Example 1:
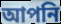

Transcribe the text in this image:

আপনি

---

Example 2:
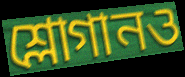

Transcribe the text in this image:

শ্লোগানও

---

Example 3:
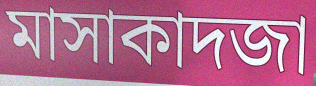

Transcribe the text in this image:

মাসাকাদজা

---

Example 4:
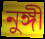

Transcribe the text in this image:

নুঙ্গী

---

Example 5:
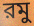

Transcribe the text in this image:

রমু